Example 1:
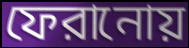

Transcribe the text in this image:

ফেরানোয়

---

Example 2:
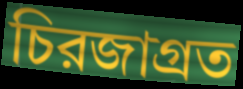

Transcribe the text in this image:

চিরজাগ্রত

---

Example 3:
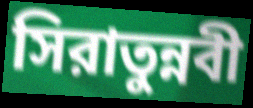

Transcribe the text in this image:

সিরাতুন্নবী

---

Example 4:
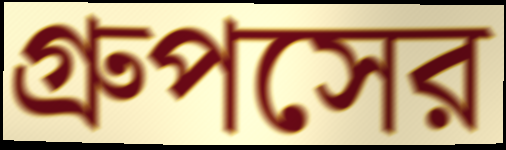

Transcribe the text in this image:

গ্রুপসের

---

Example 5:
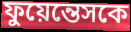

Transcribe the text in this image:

ফুয়েন্তেসকে